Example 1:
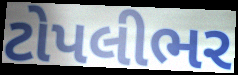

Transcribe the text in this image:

ટોપલીભર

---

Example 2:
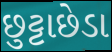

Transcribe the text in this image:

છુટ્ટાછેડા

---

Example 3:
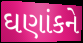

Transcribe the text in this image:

ઘણાંકને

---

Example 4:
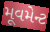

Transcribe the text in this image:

મૂવમેન્ટ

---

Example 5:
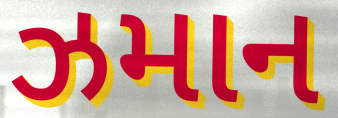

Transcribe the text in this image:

ઝમાન